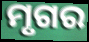
ମୃଗର